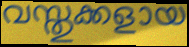
വസ്തുക്കളായ